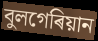
বুলগেৰিয়ান